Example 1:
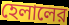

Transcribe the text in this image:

হেলালের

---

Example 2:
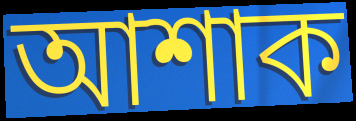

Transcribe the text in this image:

আশাক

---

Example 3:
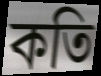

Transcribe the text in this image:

কতি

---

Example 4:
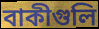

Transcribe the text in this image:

বাকীগুলি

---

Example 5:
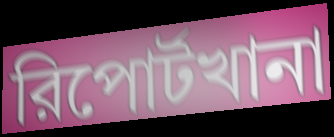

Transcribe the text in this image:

রিপোর্টখানা